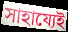
সাহায্যেই